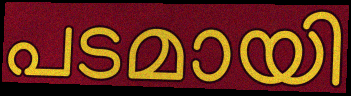
പടമായി